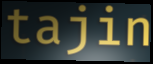
tajin